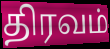
திரவம்